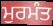
ਮੁਰਮੰਤ